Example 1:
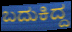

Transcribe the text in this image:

ಬದುಕಿದ್ದ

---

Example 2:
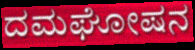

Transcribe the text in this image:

ದಮಘೋಷನ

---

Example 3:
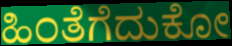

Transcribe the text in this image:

ಹಿಂತೆಗೆದುಕೋ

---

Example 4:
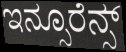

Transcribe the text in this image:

ಇನ್ಸೂರೆನ್ಸ್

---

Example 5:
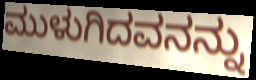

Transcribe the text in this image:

ಮುಳುಗಿದವನನ್ನು